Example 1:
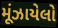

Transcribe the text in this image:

મૂંઝાયેલો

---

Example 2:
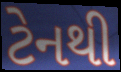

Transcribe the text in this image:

ટેનથી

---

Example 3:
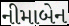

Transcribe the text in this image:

નીમાબેન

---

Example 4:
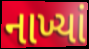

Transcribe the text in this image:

નાખ્યાં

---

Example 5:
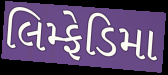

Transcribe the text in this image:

લિમ્ફેડિમા